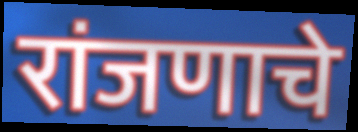
रांजणाचे